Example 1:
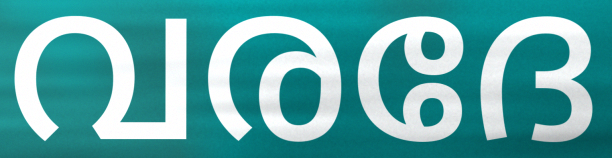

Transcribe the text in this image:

വരദേ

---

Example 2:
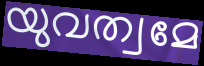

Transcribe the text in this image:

യുവത്വമേ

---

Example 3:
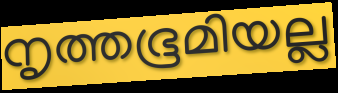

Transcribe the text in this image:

നൃത്തഭൂമിയല്ല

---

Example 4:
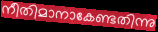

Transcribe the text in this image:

നീതിമാനാകേണ്ടതിന്നു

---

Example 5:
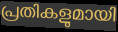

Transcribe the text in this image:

പ്രതികളുമായി